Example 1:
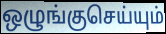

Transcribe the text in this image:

ஒழுங்குசெய்யும்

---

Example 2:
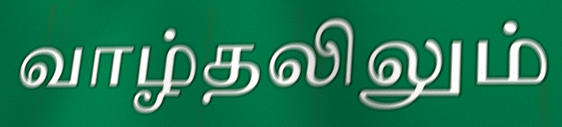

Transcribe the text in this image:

வாழ்தலிலும்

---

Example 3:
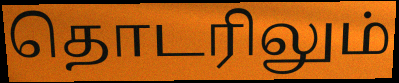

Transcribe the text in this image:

தொடரிலும்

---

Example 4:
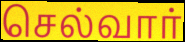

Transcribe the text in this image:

செல்வார்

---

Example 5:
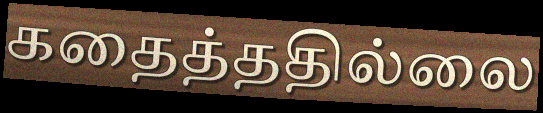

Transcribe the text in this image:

கதைத்ததில்லை